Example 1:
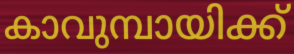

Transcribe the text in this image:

കാവുമ്പായിക്ക്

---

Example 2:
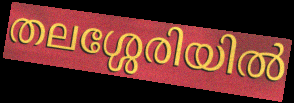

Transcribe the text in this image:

തലശ്ശേരിയിൽ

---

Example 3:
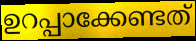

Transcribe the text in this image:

ഉറപ്പാക്കേണ്ടത്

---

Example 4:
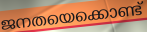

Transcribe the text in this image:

ജനതയെക്കൊണ്ട്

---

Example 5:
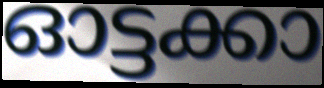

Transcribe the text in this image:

ഓട്ടക്കാ